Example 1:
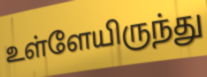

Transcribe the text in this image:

உள்ளேயிருந்து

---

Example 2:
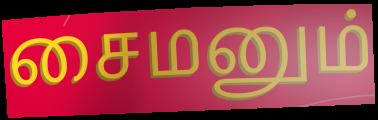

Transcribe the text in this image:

சைமனும்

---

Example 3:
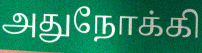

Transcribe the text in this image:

அதுநோக்கி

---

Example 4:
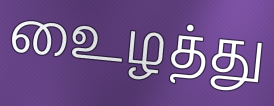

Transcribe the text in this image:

உைழத்து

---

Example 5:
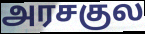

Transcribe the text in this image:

அரசகுல